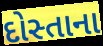
દોસ્તાના